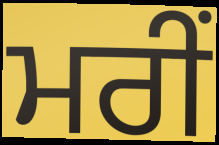
ਮਰੀਂ